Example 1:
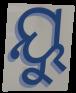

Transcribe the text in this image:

ୟୁ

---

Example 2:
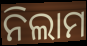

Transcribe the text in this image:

ନିଲାମ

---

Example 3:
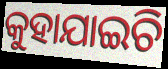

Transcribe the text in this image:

କୁହାଯାଇଚି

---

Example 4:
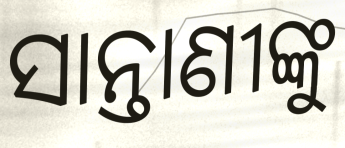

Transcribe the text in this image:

ସାନ୍ତାଣୀଙ୍କୁ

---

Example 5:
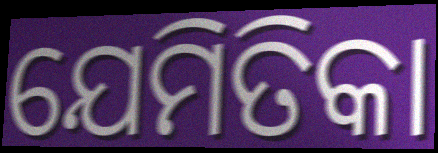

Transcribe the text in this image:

ଯେମିତିକା